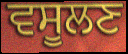
ਵਸੂਲਣ